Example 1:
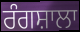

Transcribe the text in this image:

ਰੰਗਸ਼ਾਲਾ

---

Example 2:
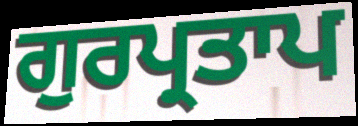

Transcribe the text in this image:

ਗੁਰਪ੍ਰਤਾਪ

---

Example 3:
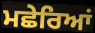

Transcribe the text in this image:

ਮਛੇਰਿਆਂ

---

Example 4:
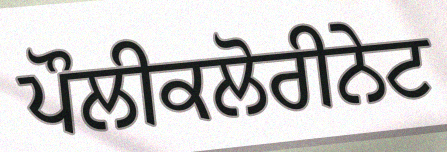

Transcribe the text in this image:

ਪੌਲੀਕਲੋਰੀਨੇਟ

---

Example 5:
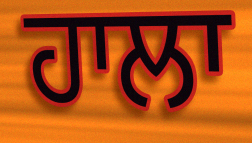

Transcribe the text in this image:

ਹਾਲਾ